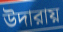
উদারায়